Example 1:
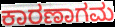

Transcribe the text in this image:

ಕಾರಣಾಗಮ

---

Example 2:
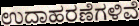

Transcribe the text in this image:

ಉದಾಹರಣೆಗಳಿವೆ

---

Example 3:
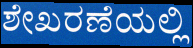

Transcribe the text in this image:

ಶೇಖರಣೆಯಲ್ಲಿ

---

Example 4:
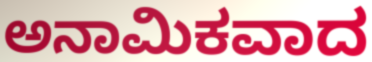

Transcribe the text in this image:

ಅನಾಮಿಕವಾದ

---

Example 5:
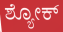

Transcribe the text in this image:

ಶ್ಯೋಕ್